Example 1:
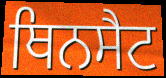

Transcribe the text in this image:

ਥਿਨਸੈਟ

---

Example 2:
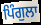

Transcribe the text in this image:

ਪਿੰਗੁਲਾ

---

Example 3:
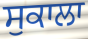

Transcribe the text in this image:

ਸੁਕਾਲਾ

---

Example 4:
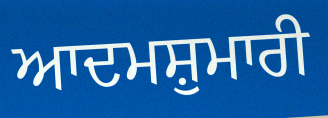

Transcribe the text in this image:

ਆਦਮਸ਼ੁਮਾਰੀ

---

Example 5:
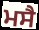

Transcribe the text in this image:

ਮਸੈ